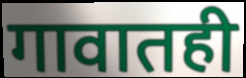
गावातही